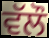
ਵੱਲੌ